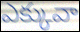
ఎక్కువా